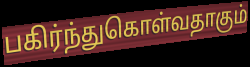
பகிர்ந்துகொள்வதாகும்